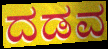
ದಡವ